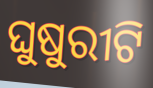
ଘୁଷୁରୀଟି